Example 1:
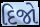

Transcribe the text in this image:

દિજો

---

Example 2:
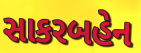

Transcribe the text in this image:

સાકરબહેન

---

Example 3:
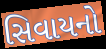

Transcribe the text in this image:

સિવાયનો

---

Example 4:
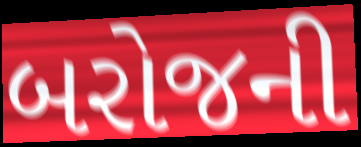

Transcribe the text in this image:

બરોજની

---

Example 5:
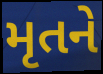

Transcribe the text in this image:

મૃતને